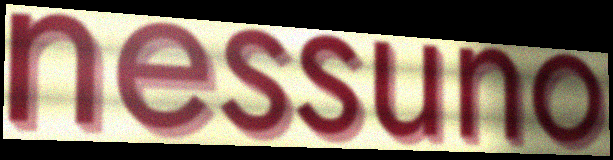
nessuno